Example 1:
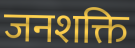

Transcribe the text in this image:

जनशक्ति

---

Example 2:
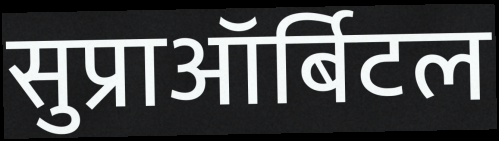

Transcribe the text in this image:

सुप्राऑर्बिटल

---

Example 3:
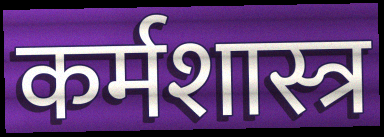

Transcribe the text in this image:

कर्मशास्त्र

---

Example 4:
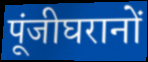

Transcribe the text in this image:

पूंजीघरानों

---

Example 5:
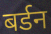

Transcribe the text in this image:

बर्डन